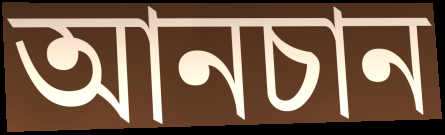
আনচান